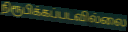
நிரூபிக்கப்படவில்லை